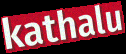
kathalu